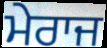
ਮੇਰਾਜ